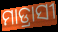
ମାଡ୍ରାସୀ